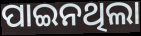
ପାଇନଥିଲା